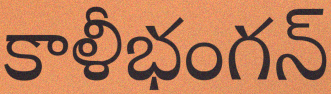
కాళీభంగన్